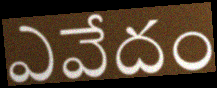
ఎవేదం